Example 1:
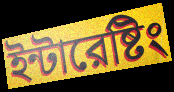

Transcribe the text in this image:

ইন্টারেষ্টিং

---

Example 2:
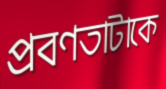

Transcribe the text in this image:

প্রবণতাটাকে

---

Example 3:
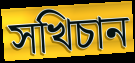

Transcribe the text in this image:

সখিচান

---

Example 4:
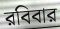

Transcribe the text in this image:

রবিবার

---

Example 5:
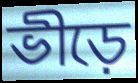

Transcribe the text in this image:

ভীড়ে